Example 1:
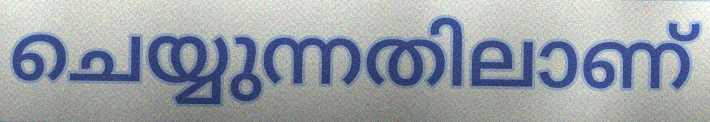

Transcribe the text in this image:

ചെയ്യുന്നതിലാണ്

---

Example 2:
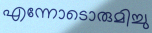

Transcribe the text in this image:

എന്നോടൊരുമിച്ചു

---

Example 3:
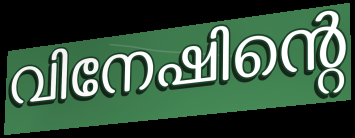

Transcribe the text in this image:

വിനേഷിന്റെ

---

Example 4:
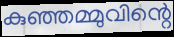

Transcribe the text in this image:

കുഞ്ഞമ്മുവിന്റെ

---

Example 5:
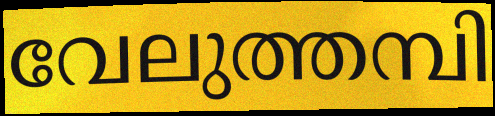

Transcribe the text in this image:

വേലുത്തമ്പി